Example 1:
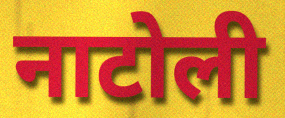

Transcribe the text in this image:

नाटोली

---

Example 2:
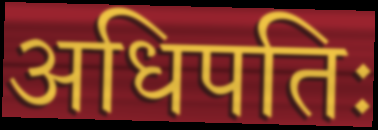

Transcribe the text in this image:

अधिपतिः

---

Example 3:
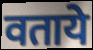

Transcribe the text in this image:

वताये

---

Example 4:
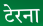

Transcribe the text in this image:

टेरना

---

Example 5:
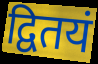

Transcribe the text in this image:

द्वितयं